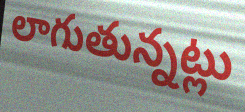
లాగుతున్నట్లు